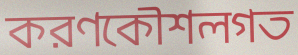
করণকৌশলগত